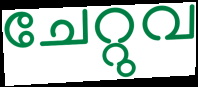
ചേറ്റുവ